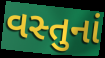
વસ્તુનાં